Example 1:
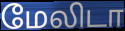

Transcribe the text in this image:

மேலிடா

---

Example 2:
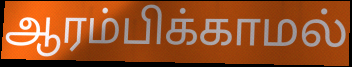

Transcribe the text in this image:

ஆரம்பிக்காமல்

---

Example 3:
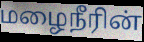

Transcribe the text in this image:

மழைநீரின்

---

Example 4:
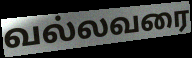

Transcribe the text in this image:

வல்லவரை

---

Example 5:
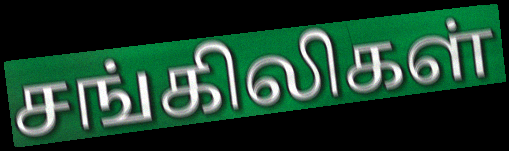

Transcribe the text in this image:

சங்கிலிகள்